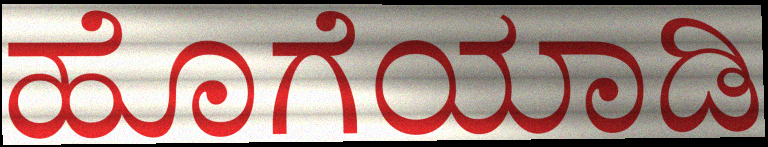
ಹೊಗೆಯಾಡಿ